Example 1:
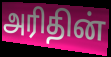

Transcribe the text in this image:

அரிதின்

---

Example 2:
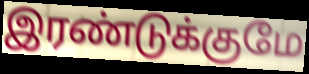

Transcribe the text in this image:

இரண்டுக்குமே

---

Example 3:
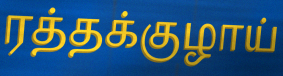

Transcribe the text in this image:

ரத்தக்குழாய்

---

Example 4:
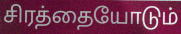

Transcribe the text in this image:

சிரத்தையோடும்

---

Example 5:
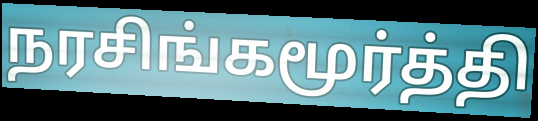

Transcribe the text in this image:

நரசிங்கமூர்த்தி